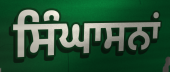
ਸਿੰਘਾਸਨਾਂ